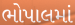
ભોપાલમાં